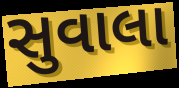
સુવાલા